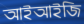
আইআইজি